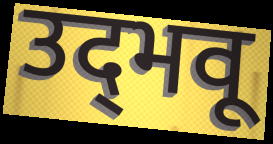
उद्‌भवू